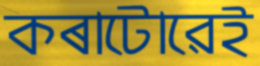
কৰাটোৱেই